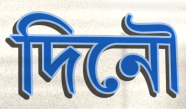
দিনৌ